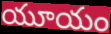
యూయం